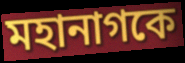
মহানাগকে